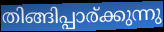
തിങ്ങിപ്പാര്ക്കുന്നു